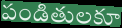
పండితులకూ